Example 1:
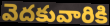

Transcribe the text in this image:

వెదకువారికి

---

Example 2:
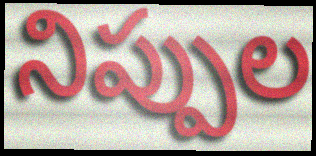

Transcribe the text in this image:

నిప్పుల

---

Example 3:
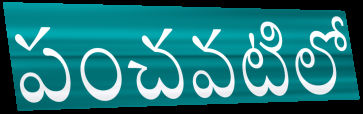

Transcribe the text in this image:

పంచవటిలో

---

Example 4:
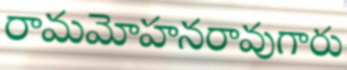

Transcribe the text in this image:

రామమోహనరావుగారు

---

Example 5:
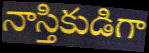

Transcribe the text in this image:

నాస్తికుడిగా